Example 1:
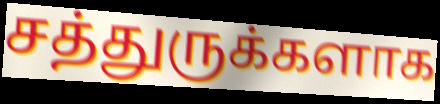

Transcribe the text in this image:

சத்துருக்களாக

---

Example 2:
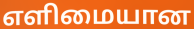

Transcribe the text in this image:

எளிமையான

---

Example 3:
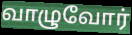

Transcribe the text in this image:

வாழுவோர்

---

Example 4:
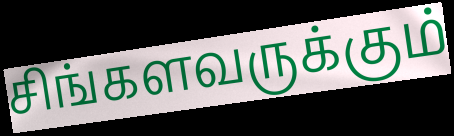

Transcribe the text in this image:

சிங்களவருக்கும்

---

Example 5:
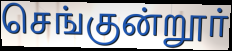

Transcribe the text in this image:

செங்குன்றூர்